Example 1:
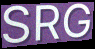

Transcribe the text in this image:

SRG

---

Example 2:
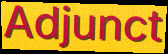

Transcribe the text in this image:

Adjunct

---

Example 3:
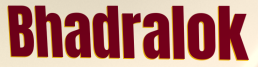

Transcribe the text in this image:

Bhadralok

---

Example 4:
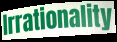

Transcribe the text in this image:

Irrationality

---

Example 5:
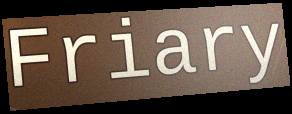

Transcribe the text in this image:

Friary